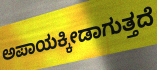
ಅಪಾಯಕ್ಕೀಡಾಗುತ್ತದೆ